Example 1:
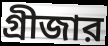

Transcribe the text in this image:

গ্রীজার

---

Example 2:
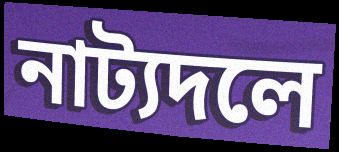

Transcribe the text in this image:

নাট্যদলে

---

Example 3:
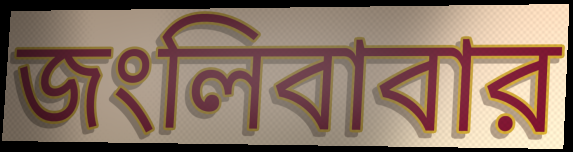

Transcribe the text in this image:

জংলিবাবার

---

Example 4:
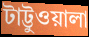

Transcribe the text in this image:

টাট্টুওয়ালা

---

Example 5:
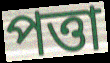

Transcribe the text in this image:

পত্তা